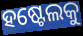
ହଷ୍ଟେଲକୁ